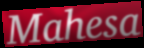
Mahesa